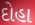
દોહા